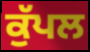
ਕੁੱਪਲ